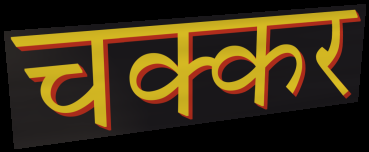
चक्कर